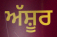
ਅੱਸ਼ੂਰ